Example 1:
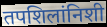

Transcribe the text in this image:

तपशिलांनिशी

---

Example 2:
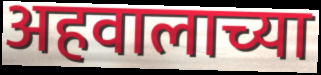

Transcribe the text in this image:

अहवालाच्या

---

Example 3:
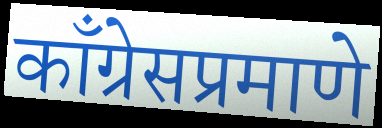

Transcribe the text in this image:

काँग्रेसप्रमाणे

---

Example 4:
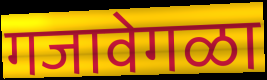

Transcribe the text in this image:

गजावेगळा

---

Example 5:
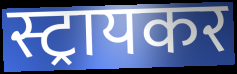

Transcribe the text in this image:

स्ट्रायकर